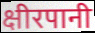
क्षीरपानी